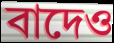
বাদেও